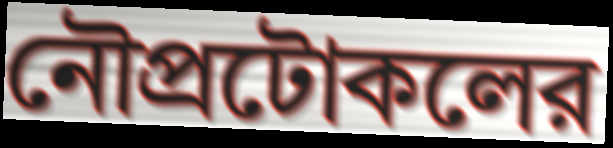
নৌপ্রটোকলের